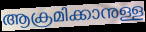
ആക്രമിക്കാനുള്ള